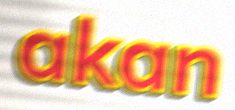
akan